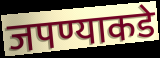
जपण्याकडे